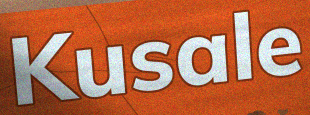
Kusale